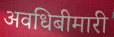
अवधिबीमारी